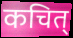
कचित्